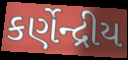
કર્ણેન્દ્રીય